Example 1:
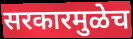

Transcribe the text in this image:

सरकारमुळेच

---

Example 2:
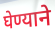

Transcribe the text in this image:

घेण्याने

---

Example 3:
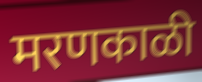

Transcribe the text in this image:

मरणकाळी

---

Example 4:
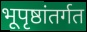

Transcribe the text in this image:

भूपृष्ठांतर्गत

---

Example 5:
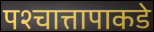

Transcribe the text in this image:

पश्चात्तापाकडे